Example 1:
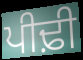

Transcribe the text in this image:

ਪੀਢ਼ੀ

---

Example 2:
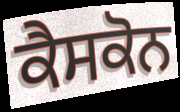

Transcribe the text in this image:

ਕੈਸਕੋਨ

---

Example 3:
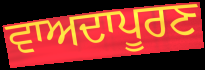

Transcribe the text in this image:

ਵਾਅਦਾਪੂਰਣ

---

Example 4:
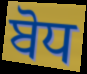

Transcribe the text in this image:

ਬੋਧ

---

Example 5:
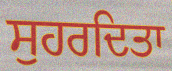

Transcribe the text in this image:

ਸੁਹਰਦਿਤਾ